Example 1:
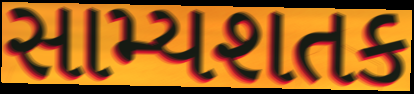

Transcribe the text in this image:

સામ્યશતક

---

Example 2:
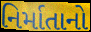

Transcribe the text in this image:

નિર્માતાનો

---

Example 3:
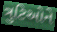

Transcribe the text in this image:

ત્રુટિઓને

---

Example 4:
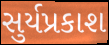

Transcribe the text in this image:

સુર્યપ્રકાશ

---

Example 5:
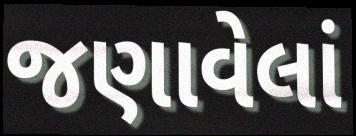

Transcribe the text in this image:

જણાવેલાં